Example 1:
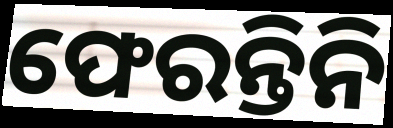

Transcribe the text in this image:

ଫେରନ୍ତିନି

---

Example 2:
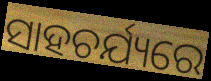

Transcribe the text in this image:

ସାହଚର୍ଯ୍ୟରେ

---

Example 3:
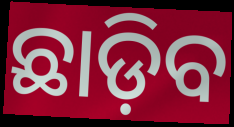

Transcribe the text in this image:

ଛାଡ଼ିବ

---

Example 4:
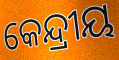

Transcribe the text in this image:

କେନ୍ଦ୍ରୀୟ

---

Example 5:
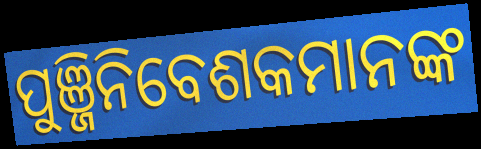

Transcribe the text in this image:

ପୁଞ୍ଜିନିବେଶକମାନଙ୍କ